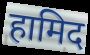
हामिद